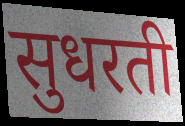
सुधरती